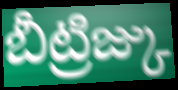
బీట్రిజ్కు